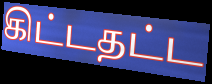
கிட்டதட்ட